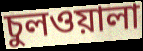
চুলওয়ালা